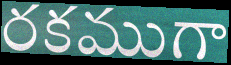
రకముగా